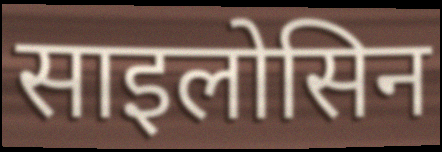
साइलोसिन